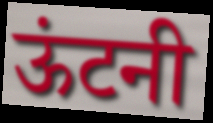
ऊंटनी